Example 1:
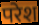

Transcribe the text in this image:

परेश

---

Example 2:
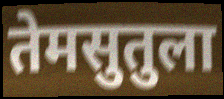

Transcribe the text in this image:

तेमसुतुला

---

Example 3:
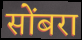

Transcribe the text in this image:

सोंबरा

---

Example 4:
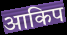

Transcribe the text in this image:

आकिप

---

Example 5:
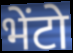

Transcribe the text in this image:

भेंटो